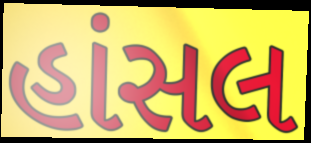
હાંસલ